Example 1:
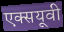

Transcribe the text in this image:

एक्सयूवी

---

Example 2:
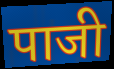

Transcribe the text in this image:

पाजी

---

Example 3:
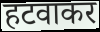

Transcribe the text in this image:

हटवाकर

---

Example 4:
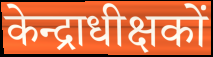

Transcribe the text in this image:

केन्द्राधीक्षकों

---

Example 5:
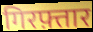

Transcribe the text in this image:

गिरफ़्तार